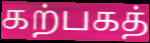
கற்பகத்